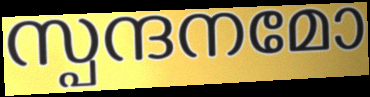
സ്പന്ദനമോ